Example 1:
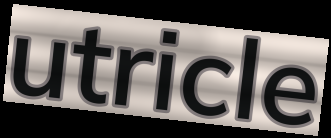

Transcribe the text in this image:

utricle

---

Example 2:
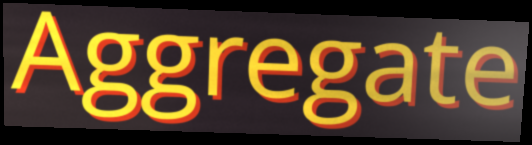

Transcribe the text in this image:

Aggregate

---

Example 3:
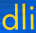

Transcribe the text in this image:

dli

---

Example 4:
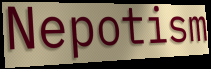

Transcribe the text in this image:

Nepotism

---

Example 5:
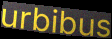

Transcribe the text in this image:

urbibus